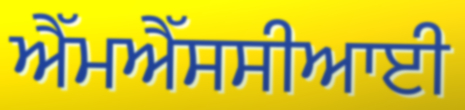
ਐੱਮਐੱਸਸੀਆਈ